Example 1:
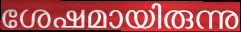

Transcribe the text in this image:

ശേഷമായിരുന്നു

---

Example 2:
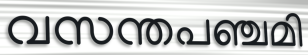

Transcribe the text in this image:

വസന്തപഞ്ചമി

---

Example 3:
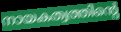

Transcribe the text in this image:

നായകത്വത്തിന്റെ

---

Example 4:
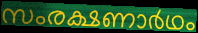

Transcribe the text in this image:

സംരക്ഷണാർഥം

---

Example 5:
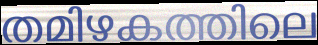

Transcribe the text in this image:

തമിഴകത്തിലെ